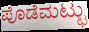
ಪೊಡೆಮಟ್ಟು